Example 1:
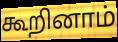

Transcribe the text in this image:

கூறினாம்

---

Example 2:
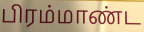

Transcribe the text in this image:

பிரம்மாண்ட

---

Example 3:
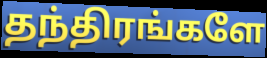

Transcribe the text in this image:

தந்திரங்களே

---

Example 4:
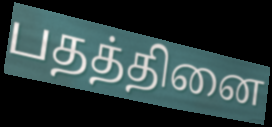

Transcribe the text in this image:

பதத்தினை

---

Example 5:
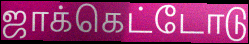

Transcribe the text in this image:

ஜாக்கெட்டோடு